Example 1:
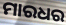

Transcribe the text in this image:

ମାରଧର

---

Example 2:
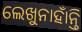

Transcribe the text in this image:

ଲେଖୁନାହାଁନ୍ତି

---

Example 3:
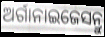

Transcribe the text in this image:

ଅର୍ଗାନାଇଜେସନ୍ରୁ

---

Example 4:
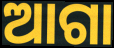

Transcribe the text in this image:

ଆଗା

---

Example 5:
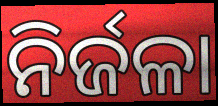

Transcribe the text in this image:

ନିର୍ଜଳା